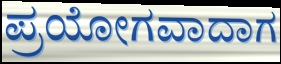
ಪ್ರಯೋಗವಾದಾಗ